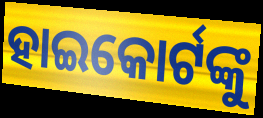
ହାଇକୋର୍ଟଙ୍କୁ